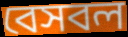
বেসবল